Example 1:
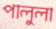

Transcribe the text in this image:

পালুলা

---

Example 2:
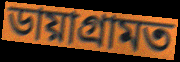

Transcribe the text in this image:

ডায়াগ্ৰামত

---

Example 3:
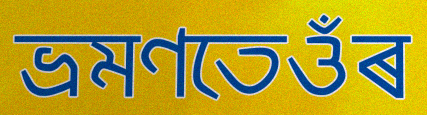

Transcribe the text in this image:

ভ্ৰমণতেওঁৰ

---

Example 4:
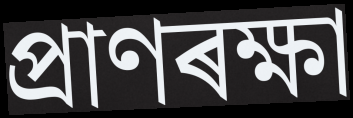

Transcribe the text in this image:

প্ৰাণৰক্ষা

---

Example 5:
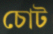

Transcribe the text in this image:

চোট